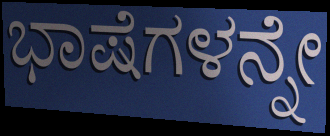
ಭಾಷೆಗಳನ್ನೇ